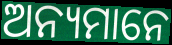
ଅନ୍ଯମାନେ